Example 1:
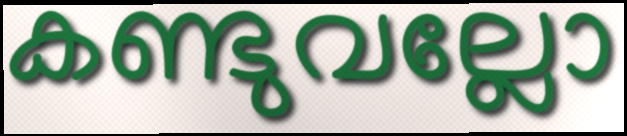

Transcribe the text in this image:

കണ്ടുവല്ലോ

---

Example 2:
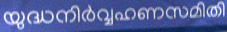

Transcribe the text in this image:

യുദ്ധനിർവ്വഹണസമിതി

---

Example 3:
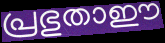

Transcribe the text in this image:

പ്രഭുതാഈ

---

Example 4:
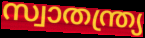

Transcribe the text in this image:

സ്വാതന്ത്ര്യ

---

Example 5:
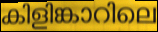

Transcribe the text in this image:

കിളിങ്കാറിലെ